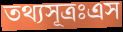
তথ্যসূত্রঃএস